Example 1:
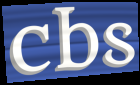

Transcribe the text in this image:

cbs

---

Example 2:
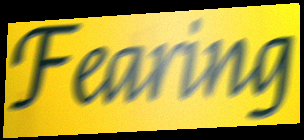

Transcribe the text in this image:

Fearing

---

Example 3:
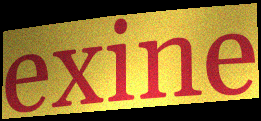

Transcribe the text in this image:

exine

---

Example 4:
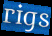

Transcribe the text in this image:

rigs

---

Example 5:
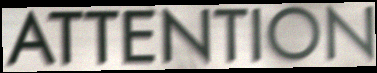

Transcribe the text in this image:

ATTENTION